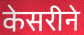
केसरीने